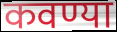
कवण्या